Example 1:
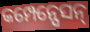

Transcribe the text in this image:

କମ୍ପେନ୍ସେସନ୍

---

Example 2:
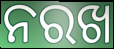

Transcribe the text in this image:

ନରଖ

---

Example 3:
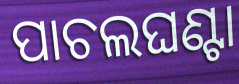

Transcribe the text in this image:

ପାଚଲଘଣ୍ଟା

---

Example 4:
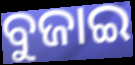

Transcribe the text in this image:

ବୁଜାଇ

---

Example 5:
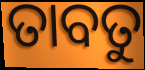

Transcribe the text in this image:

ତାବତୁ